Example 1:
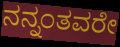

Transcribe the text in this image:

ನನ್ನಂತವರೇ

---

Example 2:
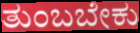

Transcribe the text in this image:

ತುಂಬಬೇಕು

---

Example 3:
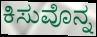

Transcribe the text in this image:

ಕಿಸುವೊನ್ನ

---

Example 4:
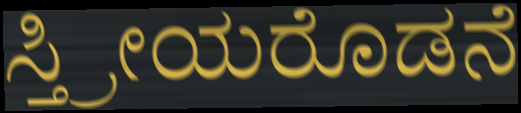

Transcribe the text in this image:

ಸ್ತ್ರೀಯರೊಡನೆ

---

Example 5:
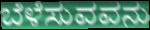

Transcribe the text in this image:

ಬೆಳೆಸುವವನು